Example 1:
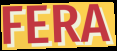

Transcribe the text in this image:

FERA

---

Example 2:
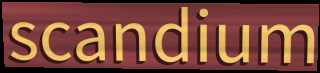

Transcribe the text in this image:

scandium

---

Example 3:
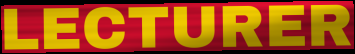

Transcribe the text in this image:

LECTURER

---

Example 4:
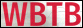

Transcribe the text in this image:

WBTB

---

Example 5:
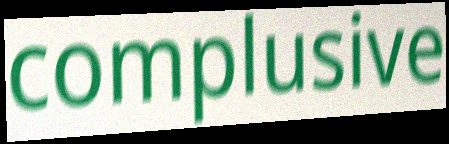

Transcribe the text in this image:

complusive